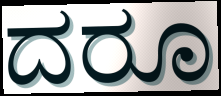
ದರೂ